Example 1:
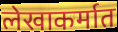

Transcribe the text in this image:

लेखाकर्मात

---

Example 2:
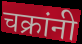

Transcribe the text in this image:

चक्रांनी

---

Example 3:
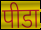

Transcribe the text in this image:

पीडा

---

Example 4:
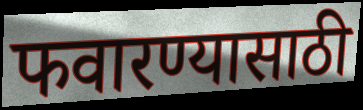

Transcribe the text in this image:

फवारण्यासाठी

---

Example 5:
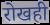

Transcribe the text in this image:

रोखही